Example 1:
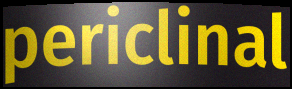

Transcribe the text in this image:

periclinal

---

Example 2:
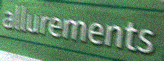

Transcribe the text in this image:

allurements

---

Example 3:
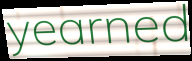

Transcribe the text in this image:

yearned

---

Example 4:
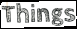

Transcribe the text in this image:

Things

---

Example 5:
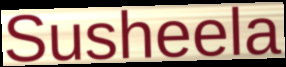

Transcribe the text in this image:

Susheela